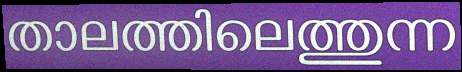
താലത്തിലെത്തുന്ന